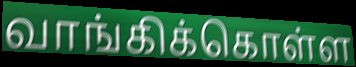
வாங்கிக்கொள்ள